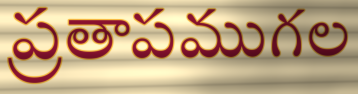
ప్రతాపముగల